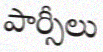
పార్సీలు